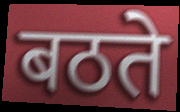
बठते